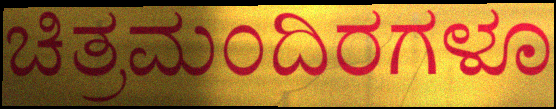
ಚಿತ್ರಮಂದಿರಗಳೂ